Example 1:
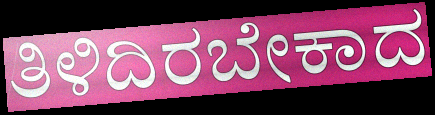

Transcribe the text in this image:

ತಿಳಿದಿರಬೇಕಾದ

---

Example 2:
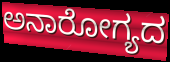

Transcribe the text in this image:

ಅನಾರೋಗ್ಯದ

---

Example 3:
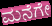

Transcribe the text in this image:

ಮನೆಗೇ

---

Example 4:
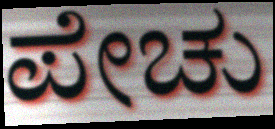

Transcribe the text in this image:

ಪೇಚು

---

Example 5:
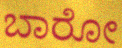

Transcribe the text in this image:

ಬಾರೋ